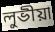
লুভীয়া